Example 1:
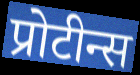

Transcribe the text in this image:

प्रोटीन्स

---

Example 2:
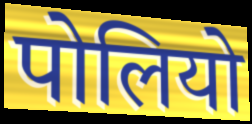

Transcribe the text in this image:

पोलियो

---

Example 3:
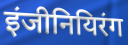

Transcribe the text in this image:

इंजीनियिरंग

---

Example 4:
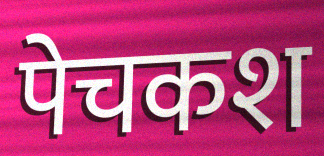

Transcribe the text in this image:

पेचकश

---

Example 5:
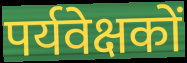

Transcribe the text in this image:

पर्यवेक्षकों